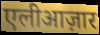
एलीआज़ार